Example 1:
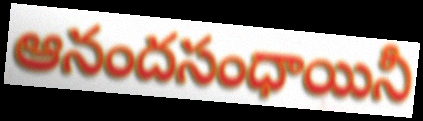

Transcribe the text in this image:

ఆనందసంధాయినీ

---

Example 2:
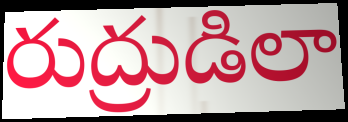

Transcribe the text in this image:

రుద్రుడిలా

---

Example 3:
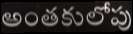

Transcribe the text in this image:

అంతకులోపు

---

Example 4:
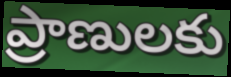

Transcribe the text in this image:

ప్రాణులకు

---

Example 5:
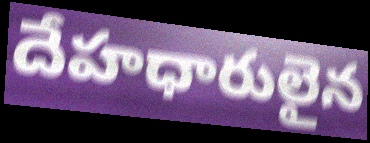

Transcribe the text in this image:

దేహధారులైన